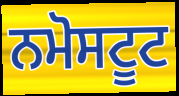
ਨਮੋਸਟੂਟ